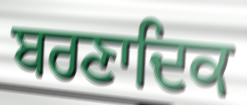
ਬਰਣਾਦਿਕ